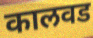
कालवड